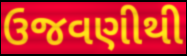
ઉજવણીથી